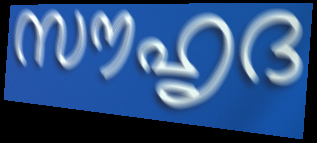
സൗഹൃദ